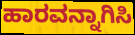
ಹಾರವನ್ನಾಗಿಸಿ